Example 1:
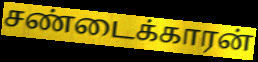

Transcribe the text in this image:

சண்டைக்காரன்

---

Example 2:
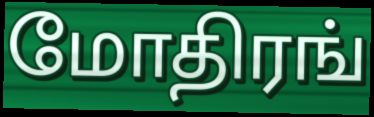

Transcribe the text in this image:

மோதிரங்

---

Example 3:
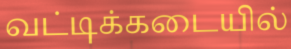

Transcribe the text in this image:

வட்டிக்கடையில்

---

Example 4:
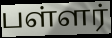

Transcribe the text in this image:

பள்ளர்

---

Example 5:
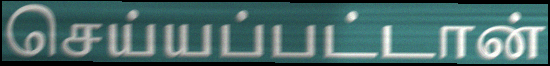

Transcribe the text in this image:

செய்யப்பட்டான்